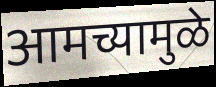
आमच्यामुळे